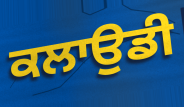
ਕਲਾਉਡੀ